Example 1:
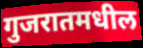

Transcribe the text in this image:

गुजरातमधील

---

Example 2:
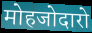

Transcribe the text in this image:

मोहजोदारो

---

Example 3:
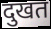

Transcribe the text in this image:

दुखत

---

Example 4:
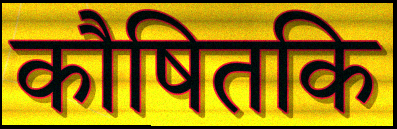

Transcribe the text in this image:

कौषितकि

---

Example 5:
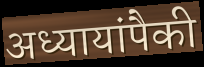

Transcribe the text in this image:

अध्यायांपैकी